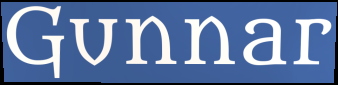
Gunnar